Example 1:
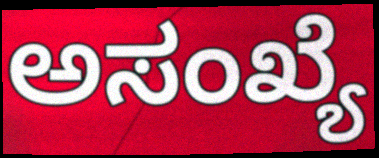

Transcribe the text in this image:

ಅಸಂಖ್ಯೆ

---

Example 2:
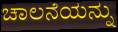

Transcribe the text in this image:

ಚಾಲನೆಯನ್ನು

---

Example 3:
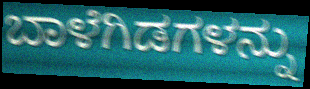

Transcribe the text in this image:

ಬಾಳೆಗಿಡಗಳನ್ನು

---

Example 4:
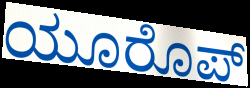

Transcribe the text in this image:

ಯೂರೊಪ್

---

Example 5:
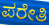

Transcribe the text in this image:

ಪರೇತಿ